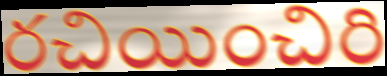
రచియించిరి